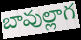
బావుల్లాగ